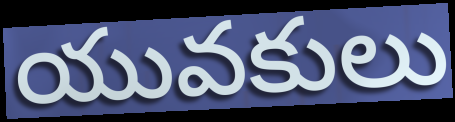
యువకులు